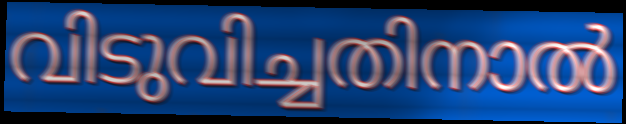
വിടുവിച്ചതിനാൽ